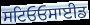
ਸਟਿਓਓਸਾਈਡ